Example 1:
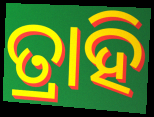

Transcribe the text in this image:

ତ୍ରାହି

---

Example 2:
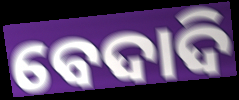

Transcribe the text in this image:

ବେଦାଦି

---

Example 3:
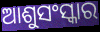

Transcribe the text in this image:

ଆଶୁସଂସ୍କାର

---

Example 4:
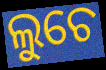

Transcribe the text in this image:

ଲୁଚେ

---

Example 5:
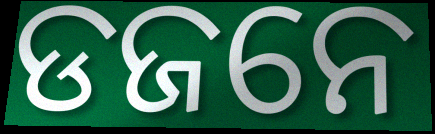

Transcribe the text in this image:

ଡଜନେ